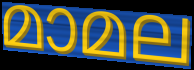
മാമല